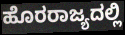
ಹೊರರಾಜ್ಯದಲ್ಲಿ